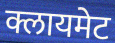
क्लायमेट